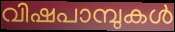
വിഷപാമ്പുകൾ